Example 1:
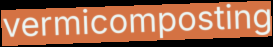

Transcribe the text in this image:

vermicomposting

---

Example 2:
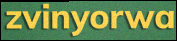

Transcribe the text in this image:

zvinyorwa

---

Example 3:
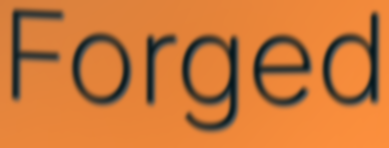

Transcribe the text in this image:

Forged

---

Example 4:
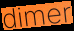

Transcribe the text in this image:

dimer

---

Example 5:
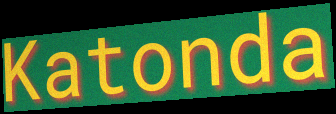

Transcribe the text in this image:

Katonda